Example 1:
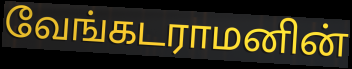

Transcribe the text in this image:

வேங்கடராமனின்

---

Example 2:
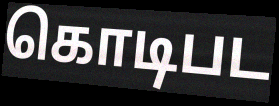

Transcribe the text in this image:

கொடிபட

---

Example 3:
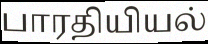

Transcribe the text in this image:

பாரதியியல்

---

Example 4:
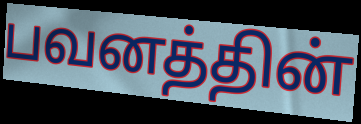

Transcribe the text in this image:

பவனத்தின்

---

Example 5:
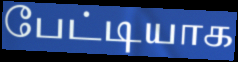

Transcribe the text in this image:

பேட்டியாக